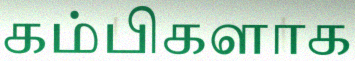
கம்பிகளாக